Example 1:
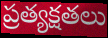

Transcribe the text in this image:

ప్రత్యక్షతలు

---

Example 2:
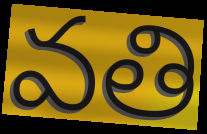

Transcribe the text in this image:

వతి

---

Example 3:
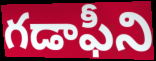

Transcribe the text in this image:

గడాఫీని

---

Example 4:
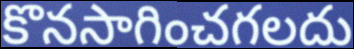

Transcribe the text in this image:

కొనసాగించగలదు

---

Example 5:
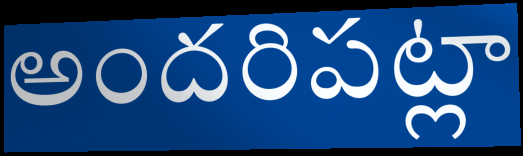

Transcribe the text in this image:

అందరిపట్లా